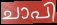
ചാപി